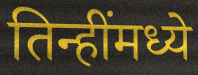
तिन्हींमध्ये